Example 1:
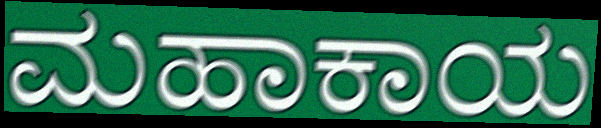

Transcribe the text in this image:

ಮಹಾಕಾಯ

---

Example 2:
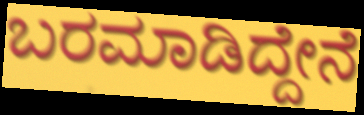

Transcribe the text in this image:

ಬರಮಾಡಿದ್ದೇನೆ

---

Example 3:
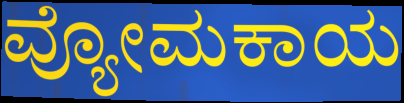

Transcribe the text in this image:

ವ್ಯೋಮಕಾಯ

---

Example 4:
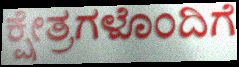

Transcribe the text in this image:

ಕ್ಷೇತ್ರಗಳೊಂದಿಗೆ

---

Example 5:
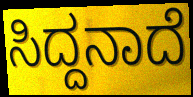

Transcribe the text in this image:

ಸಿದ್ದನಾದೆ